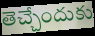
తెచ్చేందుకు